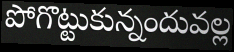
పోగొట్టుకున్నందువల్ల